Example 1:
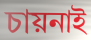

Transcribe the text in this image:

চায়নাই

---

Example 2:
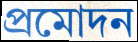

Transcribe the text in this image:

প্রমোদন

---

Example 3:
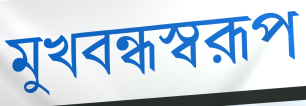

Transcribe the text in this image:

মুখবন্ধস্বরূপ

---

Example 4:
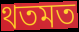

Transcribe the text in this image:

থতমত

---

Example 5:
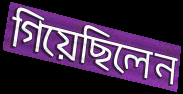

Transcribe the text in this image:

গিয়েছিলেন